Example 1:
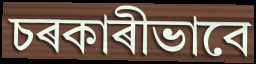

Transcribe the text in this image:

চৰকাৰীভাবে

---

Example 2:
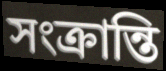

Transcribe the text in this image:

সংক্ৰান্তি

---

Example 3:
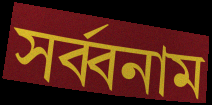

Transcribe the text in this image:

সৰ্ব্বনাম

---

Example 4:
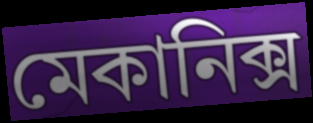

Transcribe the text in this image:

মেকানিক্স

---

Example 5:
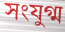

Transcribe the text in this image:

সংযুগ্ম